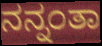
ನನ್ನಂತಾ